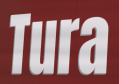
Tura